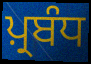
ਪ਼੍ਰਬੰਧ